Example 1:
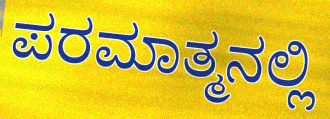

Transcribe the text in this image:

ಪರಮಾತ್ಮನಲ್ಲಿ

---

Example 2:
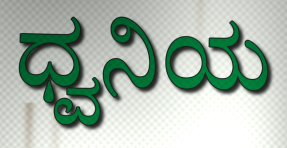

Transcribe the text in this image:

ಧ್ವನಿಯ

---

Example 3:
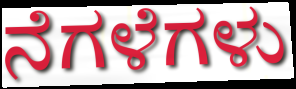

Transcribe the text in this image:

ನೆಗಳೆಗಳು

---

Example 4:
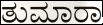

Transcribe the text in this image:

ತುಮಾರಾ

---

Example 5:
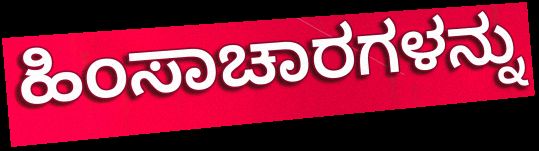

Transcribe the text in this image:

ಹಿಂಸಾಚಾರಗಳನ್ನು